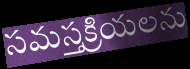
సమస్తక్రియలను